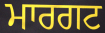
ਮਾਰਗਟ